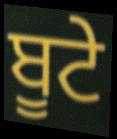
ਬੂਟੇ